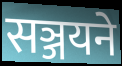
सञ्जयने